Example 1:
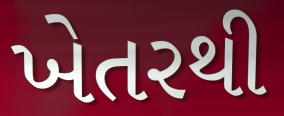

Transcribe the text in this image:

ખેતરથી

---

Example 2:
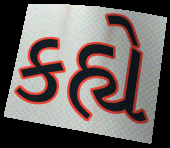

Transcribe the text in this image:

કહ્યે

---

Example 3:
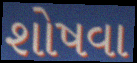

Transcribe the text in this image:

શોષવા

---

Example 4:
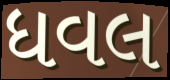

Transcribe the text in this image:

ધવલ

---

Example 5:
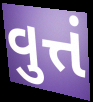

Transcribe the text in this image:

વુત્તં